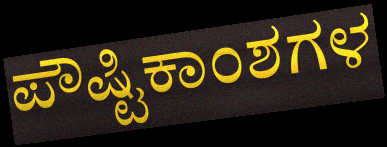
ಪೌಷ್ಟಿಕಾಂಶಗಳ